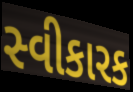
સ્વીકારક